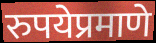
रुपयेप्रमाणे